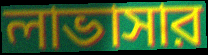
লাভাসার